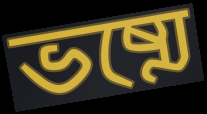
ভষ্মে